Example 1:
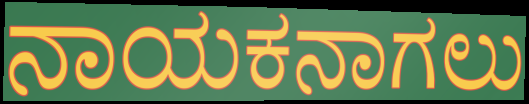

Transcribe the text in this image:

ನಾಯಕನಾಗಲು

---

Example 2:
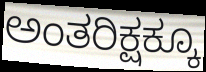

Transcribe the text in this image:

ಅಂತರಿಕ್ಷಕ್ಕೂ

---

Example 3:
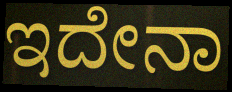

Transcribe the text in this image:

ಇದೇನಾ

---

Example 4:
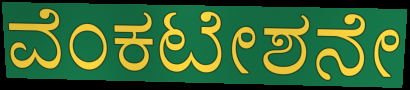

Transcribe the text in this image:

ವೆಂಕಟೇಶನೇ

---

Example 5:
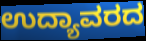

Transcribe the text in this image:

ಉದ್ಯಾವರದ